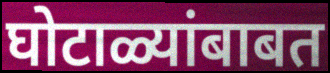
घोटाळ्यांबाबत